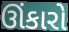
ઊંકારો